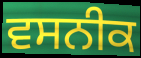
ਵਸਨੀਕ